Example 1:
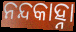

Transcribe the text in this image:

ନନ୍ଦକାହ୍ନା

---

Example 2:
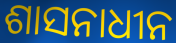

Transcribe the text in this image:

ଶାସନାଧୀନ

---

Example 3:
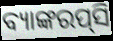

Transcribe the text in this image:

ବ୍ୟାଙ୍କରପ୍‌ସି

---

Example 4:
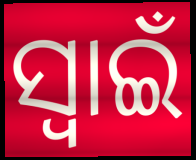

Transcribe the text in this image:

ସ୍ଵାଇଁ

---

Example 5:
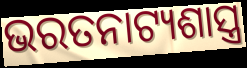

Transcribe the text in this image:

ଭରତନାଟ୍ୟଶାସ୍ତ୍ର